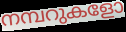
നമ്പറുകളോ